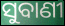
ସୁବାଣୀ